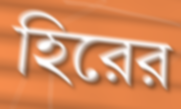
হিরের